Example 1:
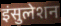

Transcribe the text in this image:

इंसुलेशन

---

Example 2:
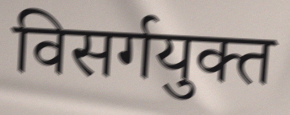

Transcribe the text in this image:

विसर्गयुक्त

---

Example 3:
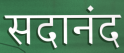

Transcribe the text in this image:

सदानंद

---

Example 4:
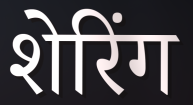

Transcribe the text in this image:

शेरिंग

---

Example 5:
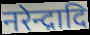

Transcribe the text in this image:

नरेन्द्रादि